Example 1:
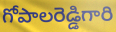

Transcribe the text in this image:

గోపాలరెడ్డిగారి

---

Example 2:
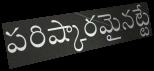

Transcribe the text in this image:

పరిష్కారమైనట్టే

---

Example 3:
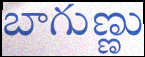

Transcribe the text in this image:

బాగుణ్ణు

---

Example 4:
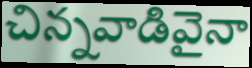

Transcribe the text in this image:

చిన్నవాడివైనా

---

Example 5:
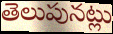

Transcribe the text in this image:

తెలుపునట్లు